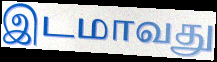
இடமாவது